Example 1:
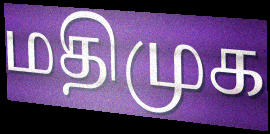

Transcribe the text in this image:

மதிமுக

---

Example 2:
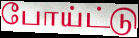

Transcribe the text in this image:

போய்ட்டு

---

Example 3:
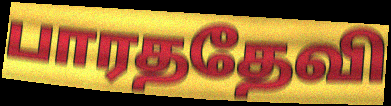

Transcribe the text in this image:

பாரததேவி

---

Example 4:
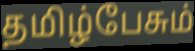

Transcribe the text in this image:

தமிழ்பேசும்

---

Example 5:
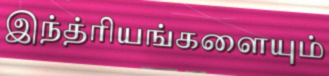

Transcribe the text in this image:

இந்த்ரியங்களையும்